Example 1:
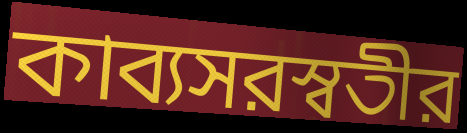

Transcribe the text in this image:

কাব্যসরস্বতীর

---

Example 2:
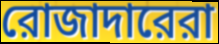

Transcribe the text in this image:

রোজাদারেরা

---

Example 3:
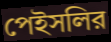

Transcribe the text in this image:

পেইসলির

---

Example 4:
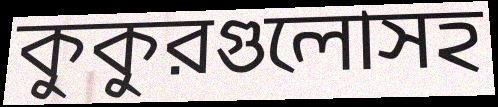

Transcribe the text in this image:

কুকুরগুলোসহ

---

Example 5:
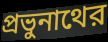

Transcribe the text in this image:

প্রভুনাথের